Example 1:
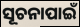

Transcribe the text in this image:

ସୂଚନାପାଇଁ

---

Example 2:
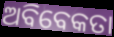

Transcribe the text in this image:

ଅବିବେକତା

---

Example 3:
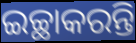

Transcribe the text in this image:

ଇଚ୍ଛାକରନ୍ତି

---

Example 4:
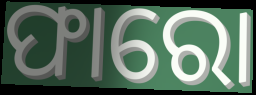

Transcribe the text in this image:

ଫାରୋ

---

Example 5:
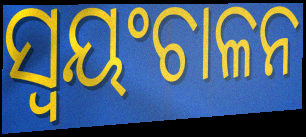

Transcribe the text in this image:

ସ୍ବୟଂଚାଳନ